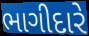
ભાગીદારે